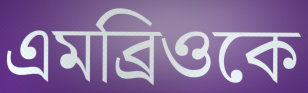
এমব্রিওকে